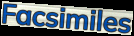
Facsimiles